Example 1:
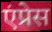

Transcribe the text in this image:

एंप्रेस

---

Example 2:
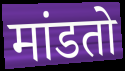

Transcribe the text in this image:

मांडतो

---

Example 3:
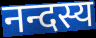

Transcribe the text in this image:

नन्दस्य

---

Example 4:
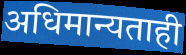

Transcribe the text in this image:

अधिमान्यताही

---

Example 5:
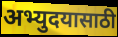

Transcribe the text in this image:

अभ्युदयासाठी